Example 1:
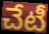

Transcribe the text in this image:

చేటీ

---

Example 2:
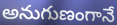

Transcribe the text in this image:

అనుగుణంగానే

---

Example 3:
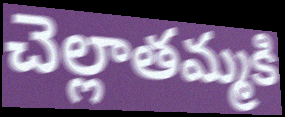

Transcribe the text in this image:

చెల్లాతమ్మకి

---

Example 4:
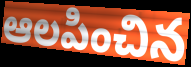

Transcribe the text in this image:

ఆలపించిన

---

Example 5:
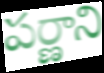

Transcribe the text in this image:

పర్ణాని